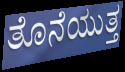
ತೊನೆಯುತ್ತ